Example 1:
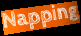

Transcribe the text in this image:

Napping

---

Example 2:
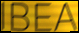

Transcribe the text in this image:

IBEA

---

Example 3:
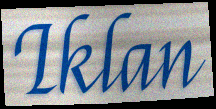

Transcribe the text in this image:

Iklan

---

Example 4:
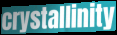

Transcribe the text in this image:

crystallinity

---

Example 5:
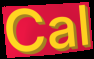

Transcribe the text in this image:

Cal